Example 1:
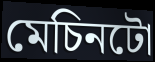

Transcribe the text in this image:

মেচিনটো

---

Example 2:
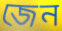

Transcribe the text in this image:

জেন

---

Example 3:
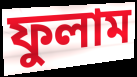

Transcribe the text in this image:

ফুলাম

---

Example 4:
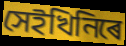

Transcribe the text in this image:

সেইখিনিৰে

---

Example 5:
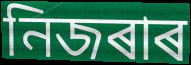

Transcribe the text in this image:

নিজৰাৰ